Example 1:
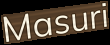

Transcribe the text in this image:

Masuri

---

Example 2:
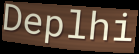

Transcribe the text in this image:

Deplhi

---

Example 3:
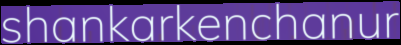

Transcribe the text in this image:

shankarkenchanur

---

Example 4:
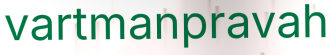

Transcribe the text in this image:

vartmanpravah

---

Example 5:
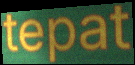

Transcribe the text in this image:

tepat